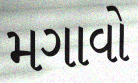
મગાવો